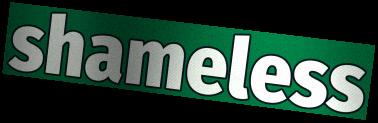
shameless